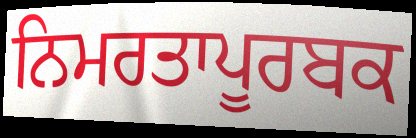
ਨਿਮਰਤਾਪੂਰਬਕ